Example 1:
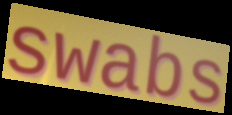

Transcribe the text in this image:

swabs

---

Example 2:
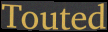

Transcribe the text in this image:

Touted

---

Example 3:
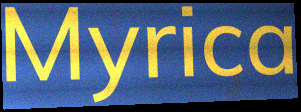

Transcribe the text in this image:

Myrica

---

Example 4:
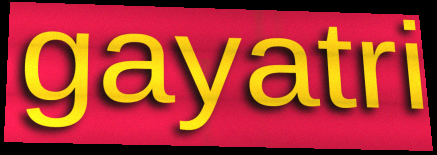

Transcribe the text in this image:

gayatri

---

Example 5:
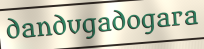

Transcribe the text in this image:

dandugadogara